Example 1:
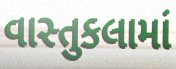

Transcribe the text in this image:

વાસ્તુકલામાં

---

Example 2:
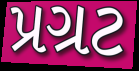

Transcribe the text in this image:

પ્રગ્રટ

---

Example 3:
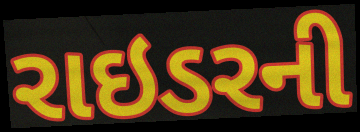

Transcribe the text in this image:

રાઇડરની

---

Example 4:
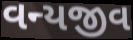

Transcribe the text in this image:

વન્યજીવ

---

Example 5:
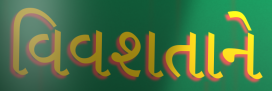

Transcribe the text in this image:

વિવશતાને